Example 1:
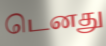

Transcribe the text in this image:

டெனது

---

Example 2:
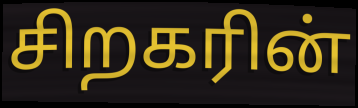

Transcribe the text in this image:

சிறகரின்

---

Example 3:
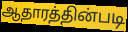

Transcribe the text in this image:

ஆதாரத்தின்படி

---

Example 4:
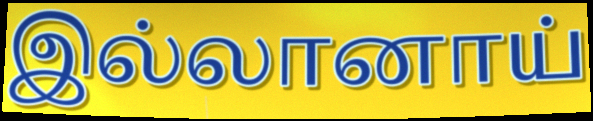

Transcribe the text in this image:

இல்லானாய்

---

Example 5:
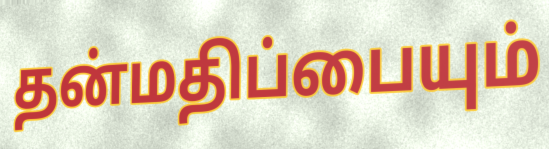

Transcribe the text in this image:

தன்மதிப்பையும்